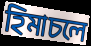
হিমাচলে